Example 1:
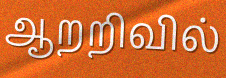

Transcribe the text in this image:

ஆறறிவில்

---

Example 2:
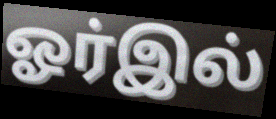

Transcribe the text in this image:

ஓர்இல்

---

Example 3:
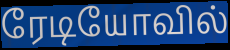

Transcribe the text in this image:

ரேடியோவில்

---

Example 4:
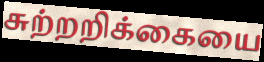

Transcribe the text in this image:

சுற்றறிக்கையை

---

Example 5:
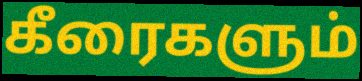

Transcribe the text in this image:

கீரைகளும்